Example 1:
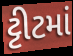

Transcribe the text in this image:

ટ્ટીટમાં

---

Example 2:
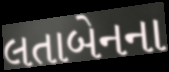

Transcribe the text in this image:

લતાબેનના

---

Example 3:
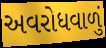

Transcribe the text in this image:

અવરોધવાળું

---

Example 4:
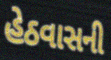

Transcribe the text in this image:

હેઠવાસની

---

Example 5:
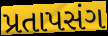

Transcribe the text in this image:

પ્રતાપસંગ